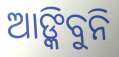
ଆଙ୍କିବୁନି